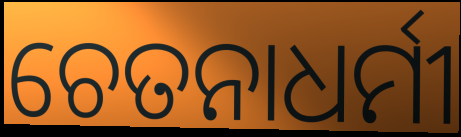
ଚେତନାଧର୍ମୀ